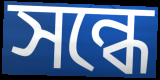
সন্ধে